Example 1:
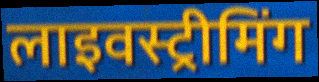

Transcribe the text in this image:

लाइवस्ट्रीमिंग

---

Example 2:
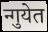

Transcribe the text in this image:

न्गुयेत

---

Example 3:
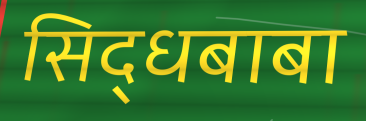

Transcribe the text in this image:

सिद्धबाबा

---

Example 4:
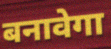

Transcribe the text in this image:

बनावेगा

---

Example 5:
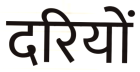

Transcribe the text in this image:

दरियों